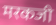
मरकजी